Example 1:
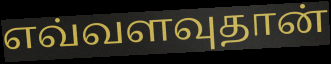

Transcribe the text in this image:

எவ்வளவுதான்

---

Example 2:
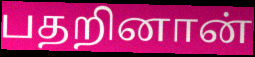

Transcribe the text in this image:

பதறினான்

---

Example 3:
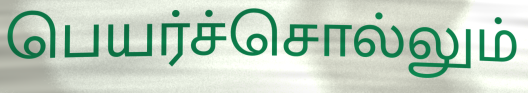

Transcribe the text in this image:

பெயர்ச்சொல்லும்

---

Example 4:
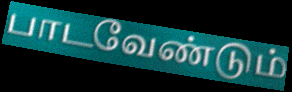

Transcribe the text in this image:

பாடவேண்டும்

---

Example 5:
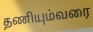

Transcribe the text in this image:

தணியும்வரை